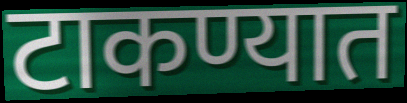
टाकण्यात